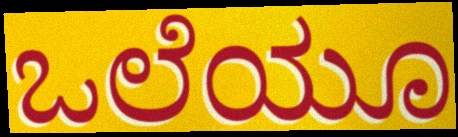
ಒಲೆಯೂ